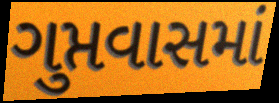
ગુપ્તવાસમાં